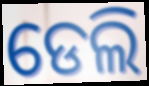
ଡେଲି